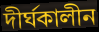
দীৰ্ঘকালীন